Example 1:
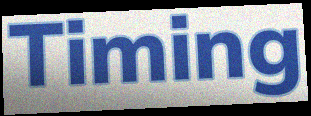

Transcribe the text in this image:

Timing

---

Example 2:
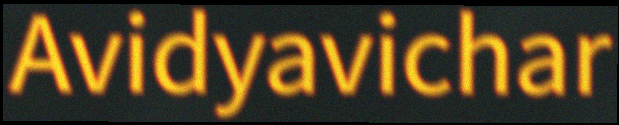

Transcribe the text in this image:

Avidyavichar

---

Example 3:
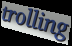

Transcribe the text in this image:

trolling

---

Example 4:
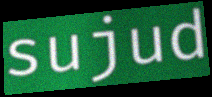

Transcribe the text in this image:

sujud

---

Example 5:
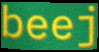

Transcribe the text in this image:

beej